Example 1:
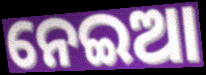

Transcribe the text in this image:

ନେଇଆ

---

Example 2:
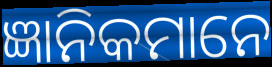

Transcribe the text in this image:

ଜ୍ଞାନିକମାନେ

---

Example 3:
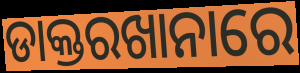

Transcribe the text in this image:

ଡାକ୍ତରଖାନାରେ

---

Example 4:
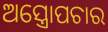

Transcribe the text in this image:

ଅସ୍ତ୍ରୋପଚାର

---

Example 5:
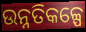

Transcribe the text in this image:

ଉନ୍ନତିକଳ୍ପେ